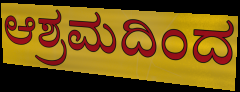
ಆಶ್ರಮದಿಂದ